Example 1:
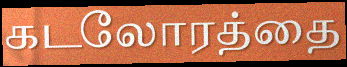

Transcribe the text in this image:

கடலோரத்தை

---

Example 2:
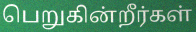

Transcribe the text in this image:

பெறுகின்றீர்கள்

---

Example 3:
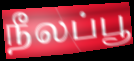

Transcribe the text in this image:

நீலப்பூ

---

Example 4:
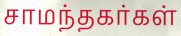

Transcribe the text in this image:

சாமந்தகர்கள்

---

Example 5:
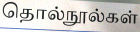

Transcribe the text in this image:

தொல்நூல்கள்